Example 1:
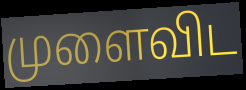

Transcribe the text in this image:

முளைவிட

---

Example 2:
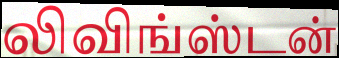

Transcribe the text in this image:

லிவிங்ஸ்டன்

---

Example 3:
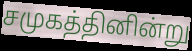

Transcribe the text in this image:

சமுகத்தினின்று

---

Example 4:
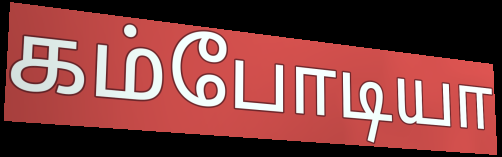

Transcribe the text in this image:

கம்போடியா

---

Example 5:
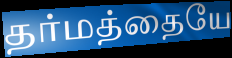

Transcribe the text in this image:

தர்மத்தையே